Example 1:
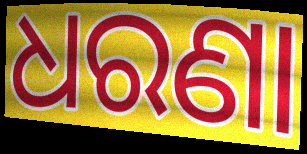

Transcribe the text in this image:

ଧରଣା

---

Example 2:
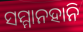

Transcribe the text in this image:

ସମ୍ମାନହାନି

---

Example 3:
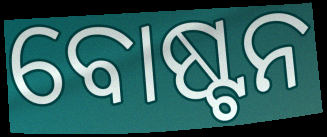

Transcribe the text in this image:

ବୋଷ୍ଟନ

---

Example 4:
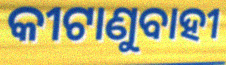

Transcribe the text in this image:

କୀଟାଣୁବାହୀ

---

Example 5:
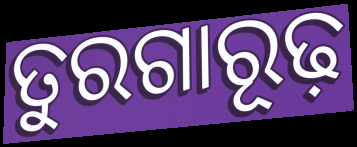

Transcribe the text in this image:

ତୁରଗାରୂଢ଼